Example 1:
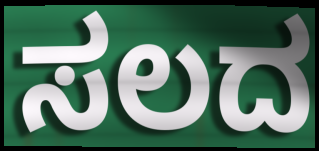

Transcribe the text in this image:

ಸಲದ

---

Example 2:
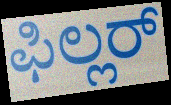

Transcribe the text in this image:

ಫಿಲ್ಲರ್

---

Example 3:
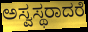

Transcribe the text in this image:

ಅಸ್ವಸ್ಥರಾದರೆ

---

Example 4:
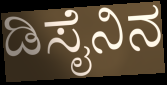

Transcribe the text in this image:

ಡಿಸೈನಿನ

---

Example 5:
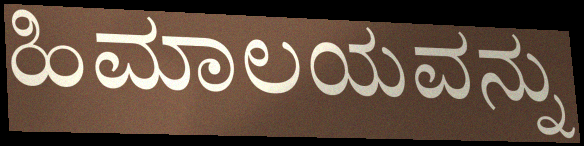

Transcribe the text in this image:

ಹಿಮಾಲಯವನ್ನು